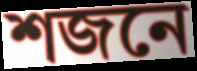
শজনে